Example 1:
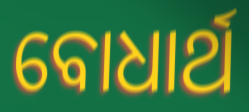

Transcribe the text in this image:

ବୋଧାର୍ଥ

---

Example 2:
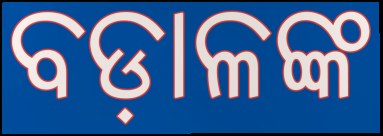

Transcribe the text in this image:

ବଡ଼ାଳଙ୍କ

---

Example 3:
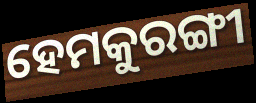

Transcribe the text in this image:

ହେମକୁରଙ୍ଗୀ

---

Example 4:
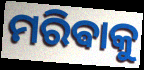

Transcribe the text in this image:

ମରିଵାକୁ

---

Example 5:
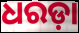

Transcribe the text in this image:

ଧରଡ଼ା